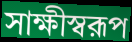
সাক্ষীস্বরূপ